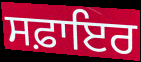
ਸਫ਼ਾਇਰ